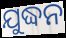
ଯୁଦ୍ଧନ